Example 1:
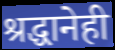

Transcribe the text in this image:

श्रद्धानेही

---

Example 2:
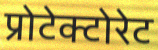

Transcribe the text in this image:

प्रोटेक्टोरेट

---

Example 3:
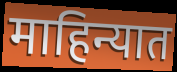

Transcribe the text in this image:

माहिन्यात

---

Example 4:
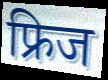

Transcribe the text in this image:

फ्रिज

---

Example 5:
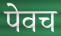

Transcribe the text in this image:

पेवच